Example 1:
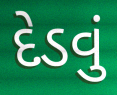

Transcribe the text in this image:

દેડવું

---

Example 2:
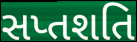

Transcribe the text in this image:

સપ્તશતિ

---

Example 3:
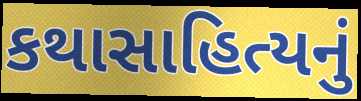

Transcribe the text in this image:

કથાસાહિત્યનું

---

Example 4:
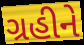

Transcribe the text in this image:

ગ્રહીને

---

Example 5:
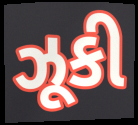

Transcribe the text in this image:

ઝૂકી